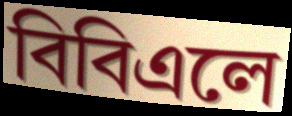
বিবিএলে